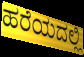
ಹರೆಯದಲ್ಲಿ